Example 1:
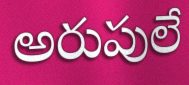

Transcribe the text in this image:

అరుపులే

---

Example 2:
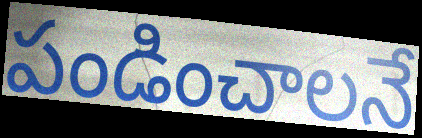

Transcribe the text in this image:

పండించాలనే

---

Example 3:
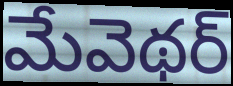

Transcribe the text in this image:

మేవెథర్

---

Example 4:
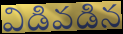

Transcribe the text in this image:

విడివడిన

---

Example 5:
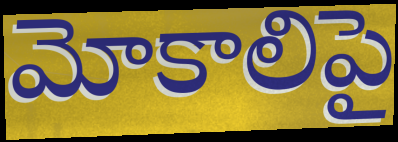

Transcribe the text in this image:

మోకాలిపై